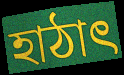
হাঠাৎ